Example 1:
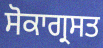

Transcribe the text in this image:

ਸੋਕਾਗ੍ਰਸਤ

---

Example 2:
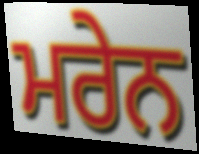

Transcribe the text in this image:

ਮਰੇਨ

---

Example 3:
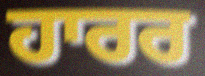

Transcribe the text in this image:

ਹਾਰਰ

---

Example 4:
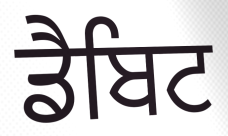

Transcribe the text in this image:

ਡੈਬਿਟ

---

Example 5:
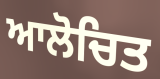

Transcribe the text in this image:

ਆਲੋਚਿਤ